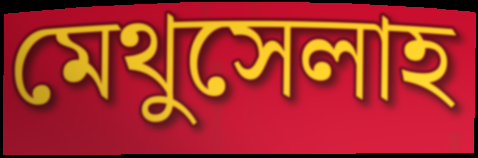
মেথুসেলাহ